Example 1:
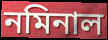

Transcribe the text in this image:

নমিনাল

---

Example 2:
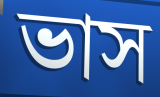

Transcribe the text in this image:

ভাস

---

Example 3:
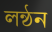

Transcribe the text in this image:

লন্ঠন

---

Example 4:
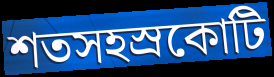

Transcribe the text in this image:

শতসহস্রকোটি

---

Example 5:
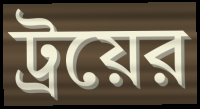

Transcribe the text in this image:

ট্রয়ের